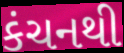
કંચનથી